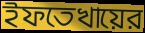
ইফতেখায়ের